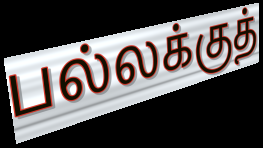
பல்லக்குத்